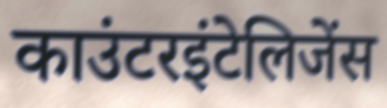
काउंटरइंटेलिजेंस